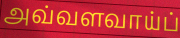
அவ்வளவாய்ப்